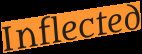
Inflected